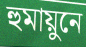
হুমায়ুনে